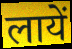
लायें